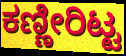
ಕಣ್ಣೀರಿಟ್ಟ